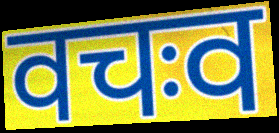
वचःव